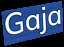
Gaja